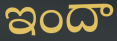
ఇందా